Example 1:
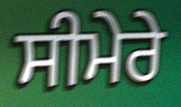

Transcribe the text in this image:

ਸੀਮੇਰੇ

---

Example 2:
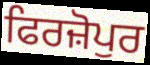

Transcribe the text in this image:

ਫਿਰਜ਼ੋਪੁਰ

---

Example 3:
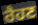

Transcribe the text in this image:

ਰੈਹਣ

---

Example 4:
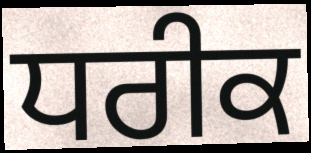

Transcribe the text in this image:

ਧਰੀਕ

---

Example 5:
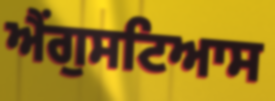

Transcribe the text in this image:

ਐਂਗੁਸਟਿਆਸ